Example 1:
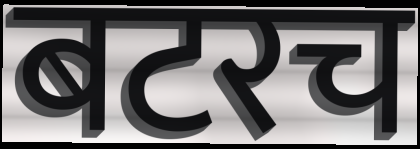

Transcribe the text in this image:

बटरच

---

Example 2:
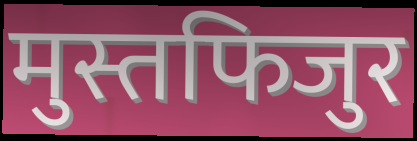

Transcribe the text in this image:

मुस्तफिजुर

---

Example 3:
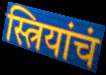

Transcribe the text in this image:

स्त्रियांचं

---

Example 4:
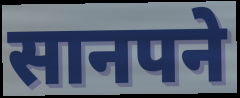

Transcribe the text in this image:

सानपने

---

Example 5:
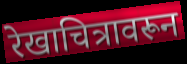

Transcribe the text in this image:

रेखाचित्रावरून